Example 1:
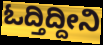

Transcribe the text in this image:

ಓದ್ತಿದ್ದೀನಿ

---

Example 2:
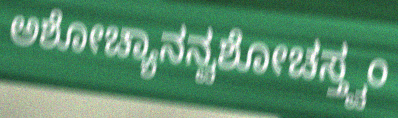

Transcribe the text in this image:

ಅಶೋಚ್ಯಾನನ್ವಶೋಚಸ್ತ್ವಂ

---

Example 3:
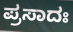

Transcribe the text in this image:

ಪ್ರಸಾದಃ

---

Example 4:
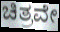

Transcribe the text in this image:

ಚಿತ್ರವೇ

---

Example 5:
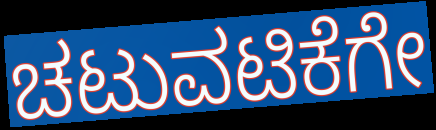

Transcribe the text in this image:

ಚಟುವಟಿಕೆಗೇ